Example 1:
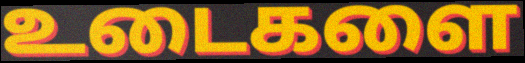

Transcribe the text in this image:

உடைகளை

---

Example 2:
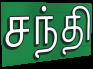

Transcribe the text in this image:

சந்தி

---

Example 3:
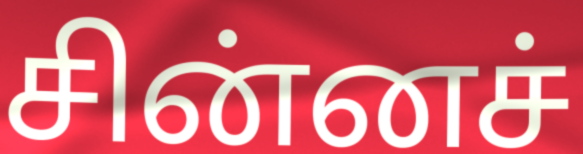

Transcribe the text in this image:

சின்னச்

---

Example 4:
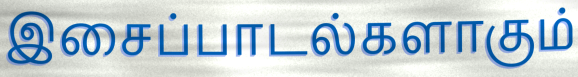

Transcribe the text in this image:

இசைப்பாடல்களாகும்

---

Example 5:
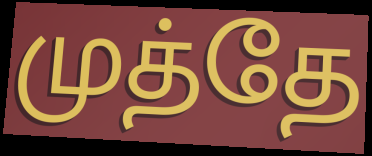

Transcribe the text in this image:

முத்தே